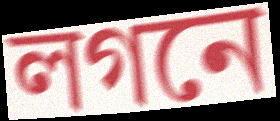
লগনে